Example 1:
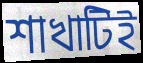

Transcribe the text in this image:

শাখাটিই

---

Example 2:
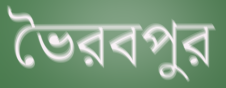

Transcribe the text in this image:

ভৈরবপুর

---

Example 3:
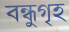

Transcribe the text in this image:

বন্ধুগৃহ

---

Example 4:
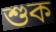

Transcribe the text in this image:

শুক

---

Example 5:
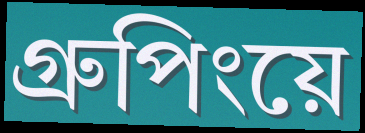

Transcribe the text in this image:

গ্রুপিংয়ে